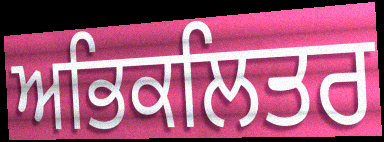
ਅਭਿਕਲਿਤਰ